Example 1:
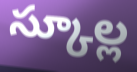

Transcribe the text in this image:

స్కూల్ల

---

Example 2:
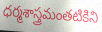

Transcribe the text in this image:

ధర్మశాస్త్రమంతటికిని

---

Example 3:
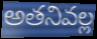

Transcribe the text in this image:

అతనివల్ల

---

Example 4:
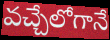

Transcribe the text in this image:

వచ్చేలోగానే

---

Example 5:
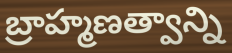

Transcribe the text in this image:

బ్రాహ్మణత్వాన్ని